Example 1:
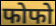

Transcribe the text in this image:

फोफो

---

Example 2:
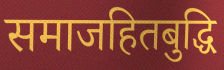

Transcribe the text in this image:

समाजहितबुद्धि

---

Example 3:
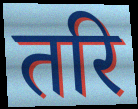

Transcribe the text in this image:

तरि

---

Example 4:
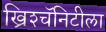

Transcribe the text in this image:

ख्रिश्चॅनिटीला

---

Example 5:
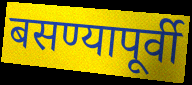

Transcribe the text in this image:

बसण्यापूर्वी